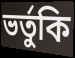
ভর্তুকি